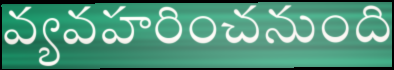
వ్యవహరించనుంది